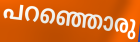
പറഞ്ഞൊരു